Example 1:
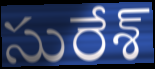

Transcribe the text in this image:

సురేశ్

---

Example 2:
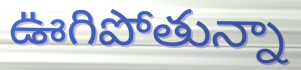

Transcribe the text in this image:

ఊగిపోతున్నా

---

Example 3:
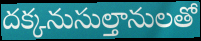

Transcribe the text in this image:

దక్కనుసుల్తానులతో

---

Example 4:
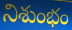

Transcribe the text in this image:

నిశుంభం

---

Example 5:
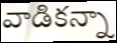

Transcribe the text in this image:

వాడికన్నా